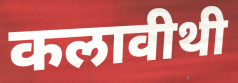
कलावीथी